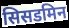
सिसडमिन